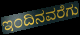
ಇಂದಿನವರೆಗು